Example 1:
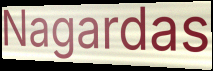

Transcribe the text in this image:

Nagardas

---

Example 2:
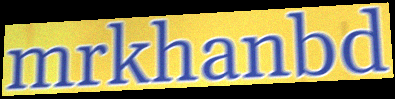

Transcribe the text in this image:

mrkhanbd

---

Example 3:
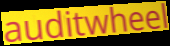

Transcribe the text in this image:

auditwheel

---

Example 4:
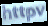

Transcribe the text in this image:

httpv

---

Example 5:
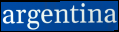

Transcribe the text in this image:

argentina